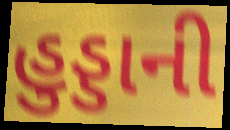
હુડ્ડાની